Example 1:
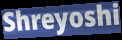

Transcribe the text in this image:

Shreyoshi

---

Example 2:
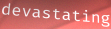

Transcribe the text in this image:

devastating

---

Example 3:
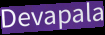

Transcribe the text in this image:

Devapala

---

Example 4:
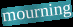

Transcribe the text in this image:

mourning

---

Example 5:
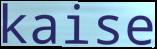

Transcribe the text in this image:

kaise